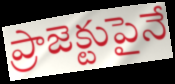
ప్రాజెక్టుపైనే